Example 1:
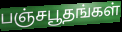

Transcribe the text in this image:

பஞ்சபூதங்கள்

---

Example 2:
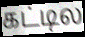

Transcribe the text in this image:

கட்டில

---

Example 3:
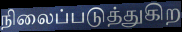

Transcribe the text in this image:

நிலைப்படுத்துகிற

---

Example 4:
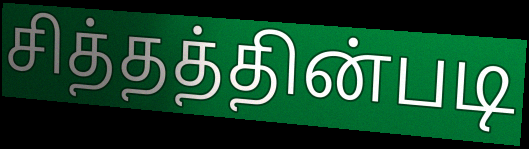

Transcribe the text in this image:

சித்தத்தின்படி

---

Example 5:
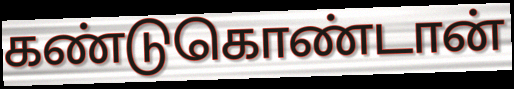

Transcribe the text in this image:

கண்டுகொண்டான்